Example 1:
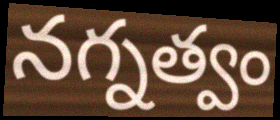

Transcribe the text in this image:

నగ్నత్వం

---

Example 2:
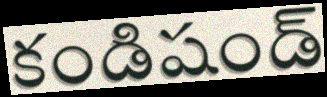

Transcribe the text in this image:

కండిషండ్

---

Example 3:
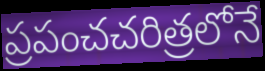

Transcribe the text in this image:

ప్రపంచచరిత్రలోనే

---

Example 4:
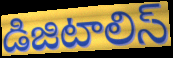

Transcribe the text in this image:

డిజిటాలిస్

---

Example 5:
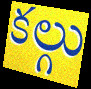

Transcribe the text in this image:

కల్గు